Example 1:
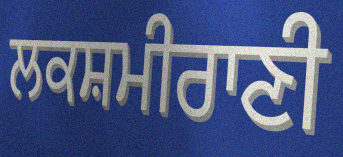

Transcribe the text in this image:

ਲਕਸ਼ਮੀਰਾਣੀ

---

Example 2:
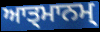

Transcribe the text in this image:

ਆਤ੍ਮਾਨਮ੍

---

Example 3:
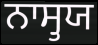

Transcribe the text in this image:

ਨਾਸ੍ਤਯ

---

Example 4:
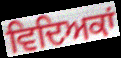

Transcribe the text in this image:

ਵਿਦਿਅਕਾਂ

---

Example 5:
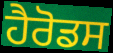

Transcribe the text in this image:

ਹੈਰੋਡਸ